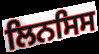
ਲਿਨਸਿਸ